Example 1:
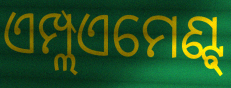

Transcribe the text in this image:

ଏମ୍ପ୍ଲଏମେଣ୍ଟ୍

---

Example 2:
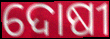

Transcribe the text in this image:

ଦୋଷୀ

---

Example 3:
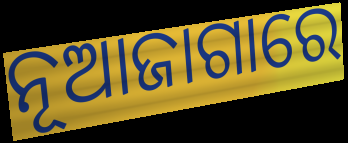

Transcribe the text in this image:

ନୂଆଜାଗାରେ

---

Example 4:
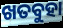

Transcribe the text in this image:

ଖତବୁହା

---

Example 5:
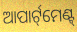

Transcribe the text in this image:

ଆପାର୍ଟ୍‌ମେଣ୍ଟ୍